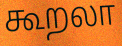
கூறலா